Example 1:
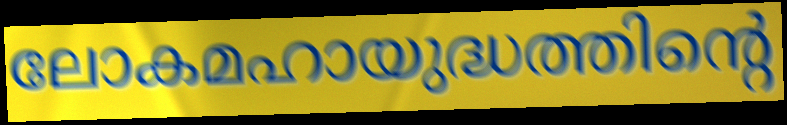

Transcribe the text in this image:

ലോകമഹായുദ്ധത്തിന്റെ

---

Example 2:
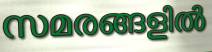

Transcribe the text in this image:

സമരങ്ങളിൽ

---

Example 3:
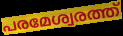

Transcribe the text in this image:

പരമേശ്വരത്ത്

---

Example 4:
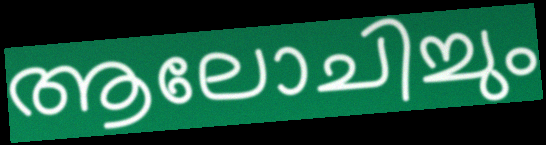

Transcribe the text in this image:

ആലോചിച്ചും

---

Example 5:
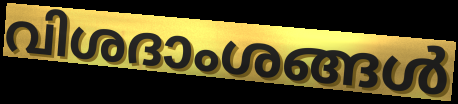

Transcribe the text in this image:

വിശദാംശങ്ങൾ